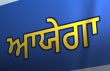
ਆਯੇਗਾ